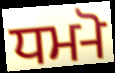
ਧਮ੍ਮੋ